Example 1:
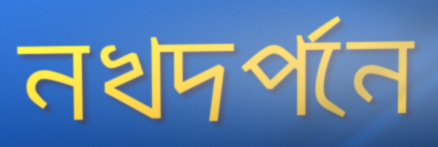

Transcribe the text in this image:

নখদর্পনে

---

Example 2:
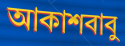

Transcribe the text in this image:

আকাশবাবু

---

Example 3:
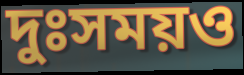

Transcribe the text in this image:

দুঃসময়ও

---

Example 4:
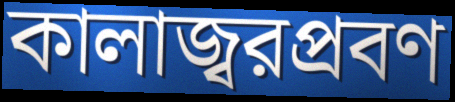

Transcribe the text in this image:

কালাজ্বরপ্রবণ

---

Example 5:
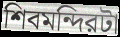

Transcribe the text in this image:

শিবমন্দিরটা